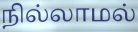
நில்லாமல்